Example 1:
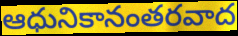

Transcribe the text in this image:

ఆధునికానంతరవాద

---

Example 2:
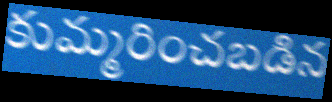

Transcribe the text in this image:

కుమ్మరించబడిన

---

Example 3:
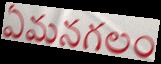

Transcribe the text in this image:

ఏమనగలం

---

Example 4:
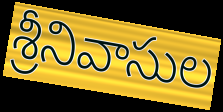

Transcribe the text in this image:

శ్రీనివాసుల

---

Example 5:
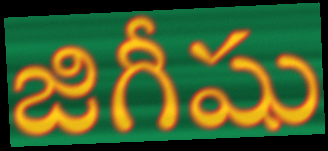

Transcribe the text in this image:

జిగీషు